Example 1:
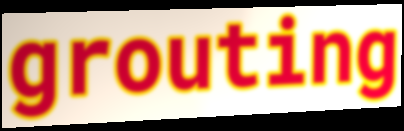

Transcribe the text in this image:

grouting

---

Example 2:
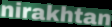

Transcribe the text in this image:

nirakhtan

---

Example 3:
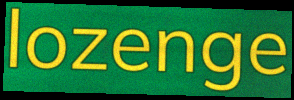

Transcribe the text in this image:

lozenge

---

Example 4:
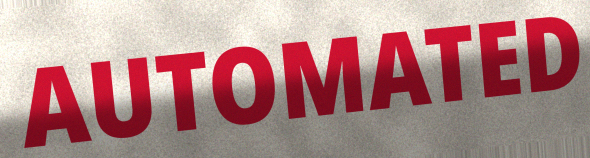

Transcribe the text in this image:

AUTOMATED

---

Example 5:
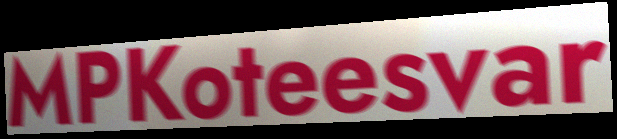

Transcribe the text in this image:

MPKoteesvar